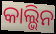
କାଲ୍ଭିନ